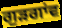
ਗੁੜਗਾਂਵ